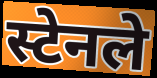
स्टेनले